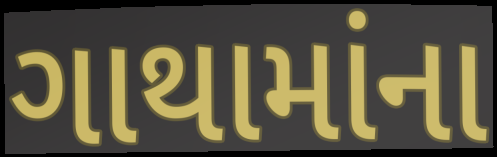
ગાથામાંના